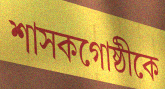
শাসকগোষ্ঠীকে